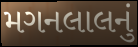
મગનલાલનું